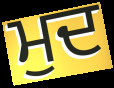
ਮੁਦ